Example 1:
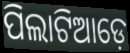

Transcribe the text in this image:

ପିଲାଟିଆଡ଼େ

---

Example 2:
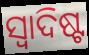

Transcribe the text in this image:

ସ୍ବାଦିଷ୍ଟ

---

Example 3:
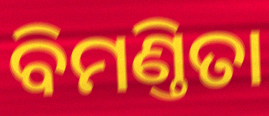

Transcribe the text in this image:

ବିମଣ୍ତିତା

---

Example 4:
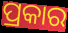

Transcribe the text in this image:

ପ୍ରକାର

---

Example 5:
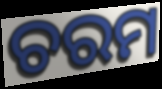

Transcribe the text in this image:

ଚରମ